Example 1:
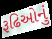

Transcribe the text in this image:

રૂઢિઓનું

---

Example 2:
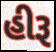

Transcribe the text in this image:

હીરૂ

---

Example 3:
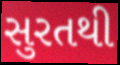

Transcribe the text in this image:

સુરતથી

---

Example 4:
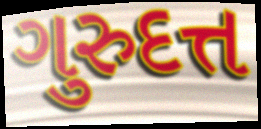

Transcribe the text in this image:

ગુરુદત્ત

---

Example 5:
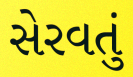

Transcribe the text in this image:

સેરવતું